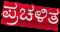
ಪ್ರಚಳಿತ